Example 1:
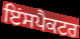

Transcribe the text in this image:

ਇਂਸਪੈਕਟਰ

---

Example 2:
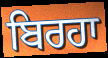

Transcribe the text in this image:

ਬਿਰਹਾ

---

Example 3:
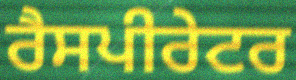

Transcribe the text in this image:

ਰੈਸਪੀਰੇਟਰ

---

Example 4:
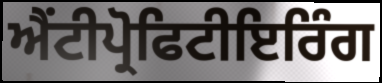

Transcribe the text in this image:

ਐਂਟੀਪ੍ਰੋਫਿਟੀਇਰਿੰਗ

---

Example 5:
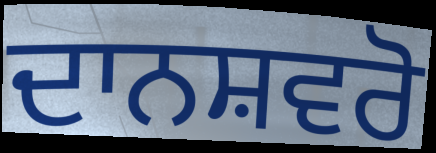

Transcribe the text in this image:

ਦਾਨਸ਼ਵਰੋ